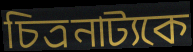
চিত্রনাট্যকে